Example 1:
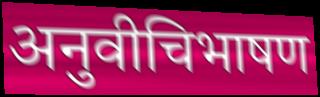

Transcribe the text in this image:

अनुवीचिभाषण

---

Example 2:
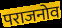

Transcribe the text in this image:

पराजनोव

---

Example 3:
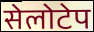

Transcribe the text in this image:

सेलोटेप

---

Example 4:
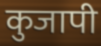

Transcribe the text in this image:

कुजापी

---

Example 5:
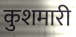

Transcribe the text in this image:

कुशमारी